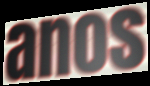
anos